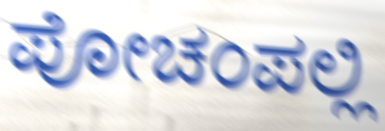
ಪೋಚಂಪಲ್ಲಿ